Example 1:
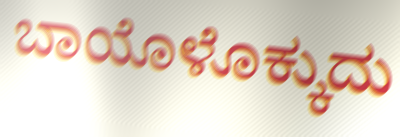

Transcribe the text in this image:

ಬಾಯೊಳೊಕ್ಕುದು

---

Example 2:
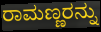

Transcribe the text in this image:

ರಾಮಣ್ಣರನ್ನು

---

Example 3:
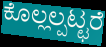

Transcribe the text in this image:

ಕೊಲ್ಲಲ್ಪಟ್ಟರೆ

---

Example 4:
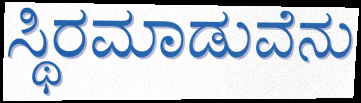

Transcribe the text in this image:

ಸ್ಥಿರಮಾಡುವೆನು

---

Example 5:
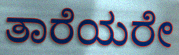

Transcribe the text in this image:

ತಾರೆಯರೇ